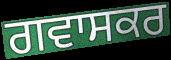
ਗਵਾਸਕਰ